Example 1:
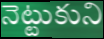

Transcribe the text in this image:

నెట్టుకుని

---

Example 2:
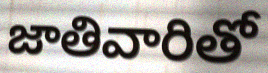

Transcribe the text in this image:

జాతివారితో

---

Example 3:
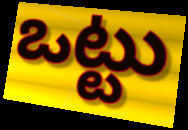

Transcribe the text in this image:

ఒట్టు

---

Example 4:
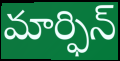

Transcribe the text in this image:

మార్ఫిన్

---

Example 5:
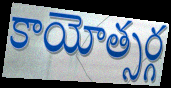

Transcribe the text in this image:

కాయోత్సర్గ